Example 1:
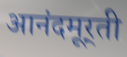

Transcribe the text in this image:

आनंदमूर्ती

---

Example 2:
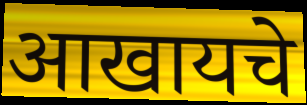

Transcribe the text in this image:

आखायचे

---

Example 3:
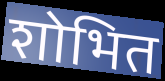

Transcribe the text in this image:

शोभित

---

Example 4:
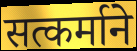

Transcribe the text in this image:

सत्कर्माने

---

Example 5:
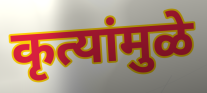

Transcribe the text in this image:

कृत्यांमुळे